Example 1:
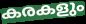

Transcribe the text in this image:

കരകളും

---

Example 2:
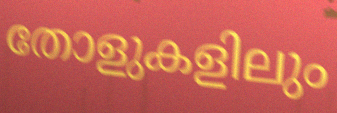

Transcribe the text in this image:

തോളുകളിലും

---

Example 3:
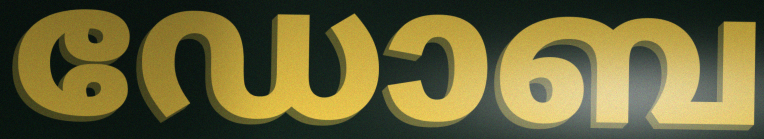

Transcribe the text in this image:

ഡോബ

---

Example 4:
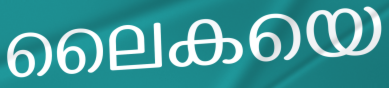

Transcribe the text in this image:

ലൈകയെ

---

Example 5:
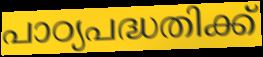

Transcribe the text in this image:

പാഠ്യപദ്ധതിക്ക്